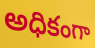
అధికంగా